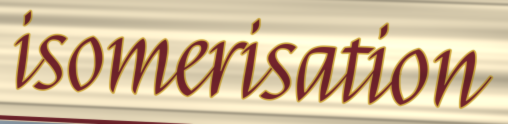
isomerisation